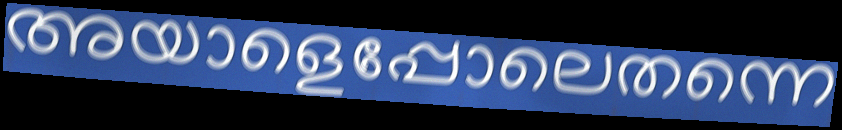
അയാളെപ്പോലെതന്നെ